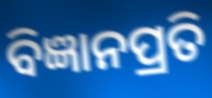
ବିଜ୍ଞାନପ୍ରତି